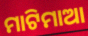
ମାଟିମାଆ